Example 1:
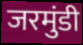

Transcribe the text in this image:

जरमुंडी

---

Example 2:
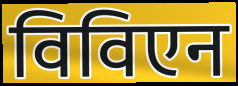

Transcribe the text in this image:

विविएन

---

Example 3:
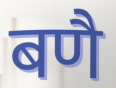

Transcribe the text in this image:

बणै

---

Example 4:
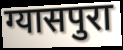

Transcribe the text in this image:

ग्यासपुरा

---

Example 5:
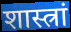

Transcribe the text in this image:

शास्त्रां